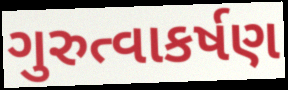
ગુરુત્વાકર્ષણ